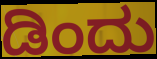
ಡಿಂದು